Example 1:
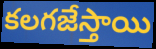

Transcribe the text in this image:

కలగజేస్తాయి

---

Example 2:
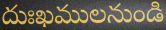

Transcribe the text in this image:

దుఃఖములనుండి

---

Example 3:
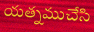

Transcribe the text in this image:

యత్నముచేసి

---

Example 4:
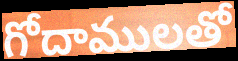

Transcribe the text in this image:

గోదాములతో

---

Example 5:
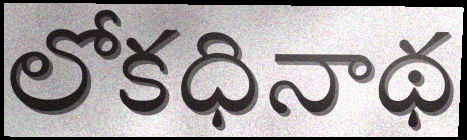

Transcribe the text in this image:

లోకధినాథ